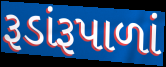
રૂડાંરૂપાળાં